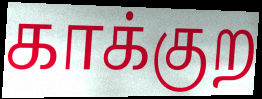
காக்குற